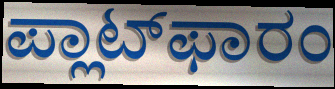
ಪ್ಲಾಟ್‌ಫಾರಂ